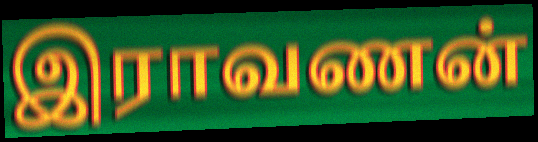
இராவணன்